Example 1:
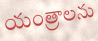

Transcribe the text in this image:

యంత్రాలను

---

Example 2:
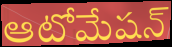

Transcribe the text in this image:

ఆటోమేషన్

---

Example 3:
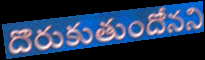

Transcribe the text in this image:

దొరుకుతుందోనని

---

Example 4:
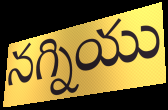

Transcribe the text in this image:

నగ్నియు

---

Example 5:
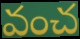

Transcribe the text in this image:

వంచ